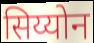
सिय्योन